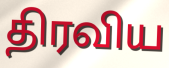
திரவிய